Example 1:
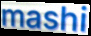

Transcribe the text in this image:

mashi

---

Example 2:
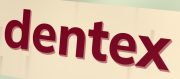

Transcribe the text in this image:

dentex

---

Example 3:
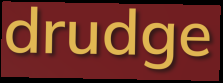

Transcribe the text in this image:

drudge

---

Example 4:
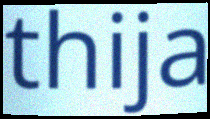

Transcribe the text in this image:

thija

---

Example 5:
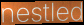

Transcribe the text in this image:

nestled